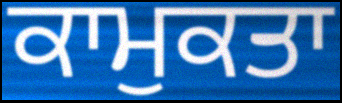
ਕਾਮੁਕਤਾ